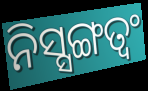
ନିସ୍ସଙ୍ଗତ୍ୱଂ